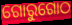
ଗୋରୁଗୋଠ